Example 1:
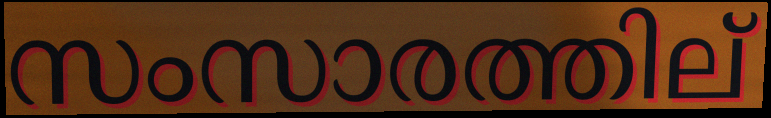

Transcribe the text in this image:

സംസാരത്തില്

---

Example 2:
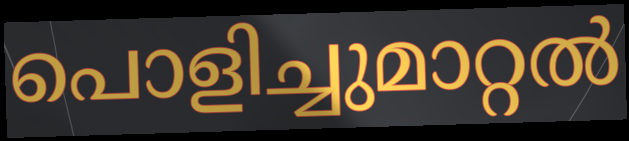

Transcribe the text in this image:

പൊളിച്ചുമാറ്റൽ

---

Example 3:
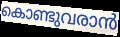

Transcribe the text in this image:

കൊണ്ടുവരാൻ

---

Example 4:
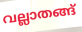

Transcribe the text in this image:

വല്ലാതങ്ങ്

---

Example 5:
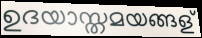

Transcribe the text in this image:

ഉദയാസ്തമയങ്ങള്